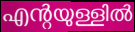
എന്റയുള്ളിൽ